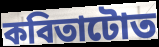
কবিতাটোত